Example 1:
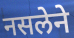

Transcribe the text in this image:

नसलेने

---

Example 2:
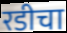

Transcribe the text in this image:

रडीचा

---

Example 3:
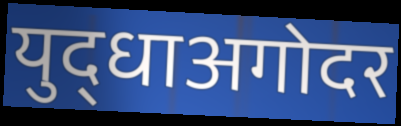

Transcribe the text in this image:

युद्धाअगोदर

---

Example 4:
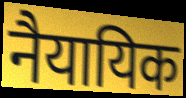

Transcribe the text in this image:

नैयायिक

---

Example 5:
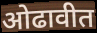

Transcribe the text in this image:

ओढावीत